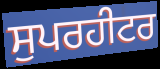
ਸੁਪਰਹੀਟਰ